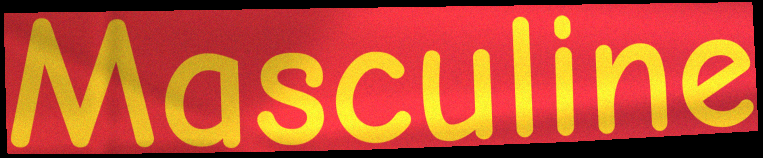
Masculine